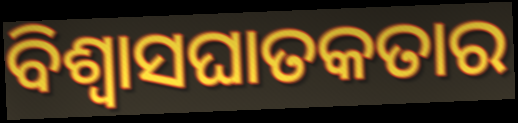
ବିଶ୍ୱାସଘାତକତାର